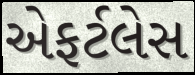
એફર્ટલેસ